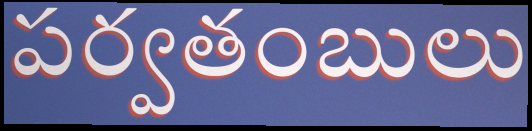
పర్వతంబులు